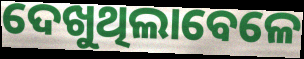
ଦେଖୁଥିଲାବେଳେ